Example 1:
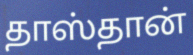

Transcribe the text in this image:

தாஸ்தான்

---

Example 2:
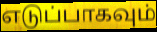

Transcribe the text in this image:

எடுப்பாகவும்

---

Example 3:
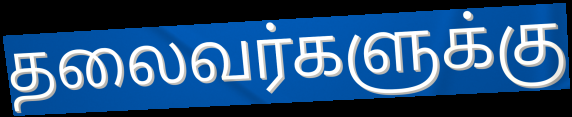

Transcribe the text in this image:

தலைவர்களுக்கு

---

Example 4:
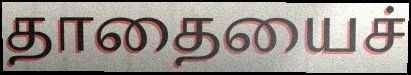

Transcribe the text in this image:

தாதையைச்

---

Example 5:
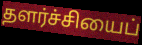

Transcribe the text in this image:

தளர்ச்சியைப்